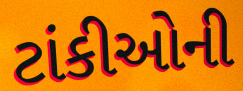
ટાંકીઓની